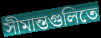
সীমান্তগুলিতে